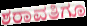
ಶರಾವತಿಗೂ